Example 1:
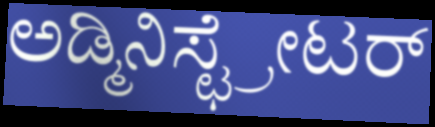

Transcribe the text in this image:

ಅಡ್ಮಿನಿಸ್ಟ್ರೇಟರ್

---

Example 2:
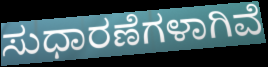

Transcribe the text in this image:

ಸುಧಾರಣೆಗಳಾಗಿವೆ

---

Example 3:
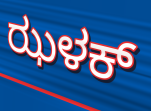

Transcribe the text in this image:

ಝಳಕ್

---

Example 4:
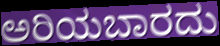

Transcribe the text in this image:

ಅರಿಯಬಾರದು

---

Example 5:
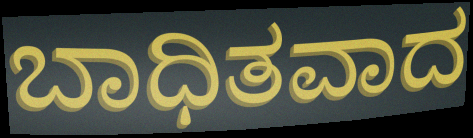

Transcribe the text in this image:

ಬಾಧಿತವಾದ